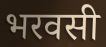
भरवसी